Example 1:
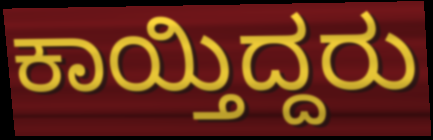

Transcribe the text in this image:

ಕಾಯ್ತಿದ್ದರು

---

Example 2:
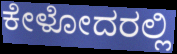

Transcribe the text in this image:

ಕೇಳೋದರಲ್ಲಿ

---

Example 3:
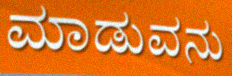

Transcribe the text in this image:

ಮಾಡುವನು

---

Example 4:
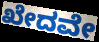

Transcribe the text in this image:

ಖೇದವೇ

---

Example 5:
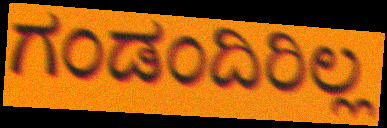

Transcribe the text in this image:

ಗಂಡಂದಿರಿಲ್ಲ